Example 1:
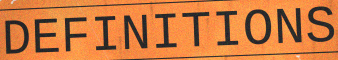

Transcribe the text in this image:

DEFINITIONS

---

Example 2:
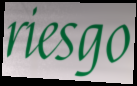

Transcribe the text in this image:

riesgo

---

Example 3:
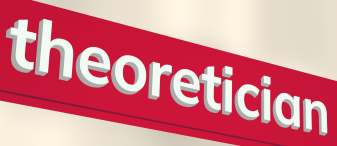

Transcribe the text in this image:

theoretician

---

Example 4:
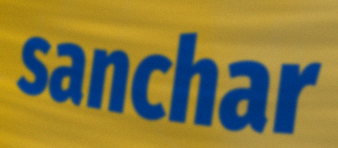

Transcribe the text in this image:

sanchar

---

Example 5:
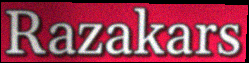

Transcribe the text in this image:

Razakars